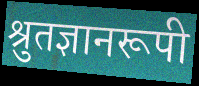
श्रुतज्ञानरूपी